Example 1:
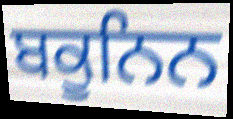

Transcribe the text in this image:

ਬਕੂਨਿਨ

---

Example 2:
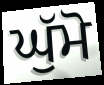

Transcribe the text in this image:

ਘੁੱਮੋ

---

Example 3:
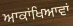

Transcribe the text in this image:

ਆਕਾਂਖਿਆਵਾਂ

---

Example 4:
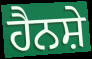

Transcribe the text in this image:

ਹੈਨਸ਼ੇ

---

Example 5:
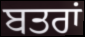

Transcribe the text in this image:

ਬਤਰਾਂ